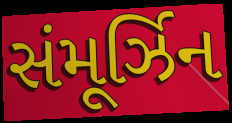
સંમૂર્ઝિન